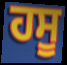
ਹਸੂ